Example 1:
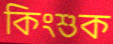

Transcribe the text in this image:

কিংশুক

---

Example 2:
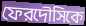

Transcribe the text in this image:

ফেরদৌসিকে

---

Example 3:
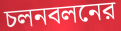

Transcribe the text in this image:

চলনবলনের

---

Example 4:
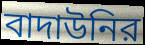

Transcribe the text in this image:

বাদাউনির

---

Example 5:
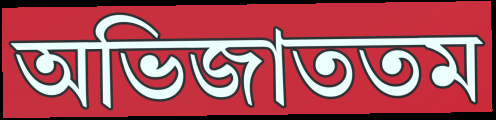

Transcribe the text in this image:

অভিজাততম